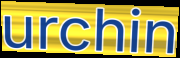
urchin